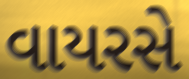
વાયરસે